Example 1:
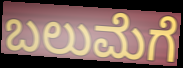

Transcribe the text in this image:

ಬಲುಮೆಗೆ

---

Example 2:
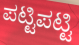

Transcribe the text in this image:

ಪಟ್ಟಿಪಟ್ಟಿ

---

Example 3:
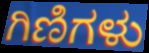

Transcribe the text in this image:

ಗಿಣಿಗಳು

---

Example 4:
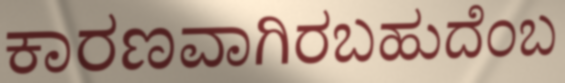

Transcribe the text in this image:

ಕಾರಣವಾಗಿರಬಹುದೆಂಬ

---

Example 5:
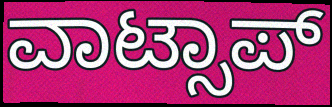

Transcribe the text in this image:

ವಾಟ್ಸಾಪ್